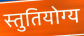
स्तुतियोग्य